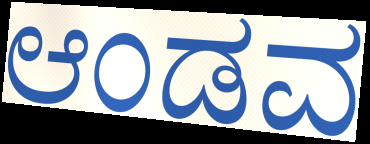
ಆಂಡವ